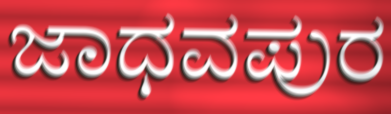
ಜಾಧವಪುರ